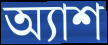
অ্যাশ